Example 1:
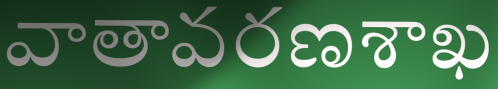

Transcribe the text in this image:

వాతావరణశాఖ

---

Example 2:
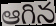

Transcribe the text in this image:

ఆగిన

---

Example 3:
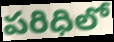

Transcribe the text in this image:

పరిధిలో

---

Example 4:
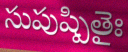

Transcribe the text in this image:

సుపుష్పితైః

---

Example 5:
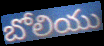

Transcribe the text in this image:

బోలియు